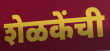
शेळकेंची